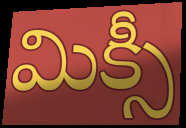
మిక్సీ